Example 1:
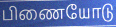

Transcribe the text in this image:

பிணையோடு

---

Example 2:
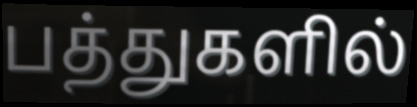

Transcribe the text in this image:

பத்துகளில்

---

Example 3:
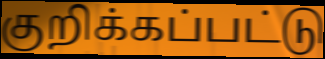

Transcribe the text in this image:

குறிக்கப்பட்டு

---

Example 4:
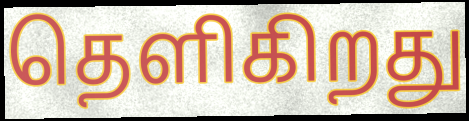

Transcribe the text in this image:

தெளிகிறது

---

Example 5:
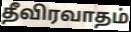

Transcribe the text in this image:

தீவிரவாதம்